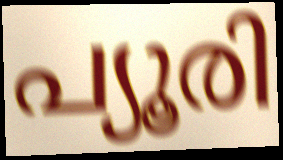
പ്യൂരി